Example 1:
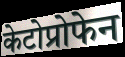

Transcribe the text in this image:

केटोप्रोफेन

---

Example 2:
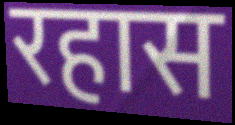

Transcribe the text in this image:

रहास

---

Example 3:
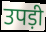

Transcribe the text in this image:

उपड़ी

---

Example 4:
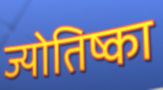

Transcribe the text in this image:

ज्योतिष्का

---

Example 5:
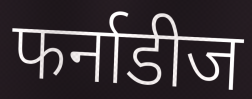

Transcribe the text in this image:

फर्नाडीज